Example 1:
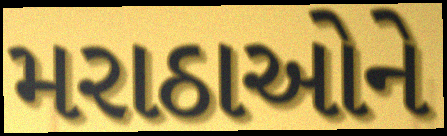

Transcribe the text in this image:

મરાઠાઓને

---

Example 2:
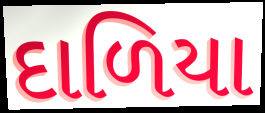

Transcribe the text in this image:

દાળિયા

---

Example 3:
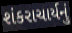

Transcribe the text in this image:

શંકરાચાર્યનું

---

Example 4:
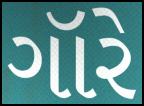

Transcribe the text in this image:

ગૉરે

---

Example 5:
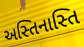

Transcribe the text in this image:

અસ્તિનાસ્તિ